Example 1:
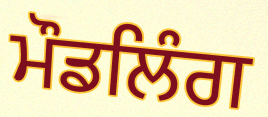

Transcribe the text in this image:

ਮੌਡਲਿੰਗ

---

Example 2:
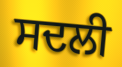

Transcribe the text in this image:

ਸਦਲੀ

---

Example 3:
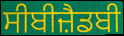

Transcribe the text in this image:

ਸੀਬੀਜ਼ੈਡਬੀ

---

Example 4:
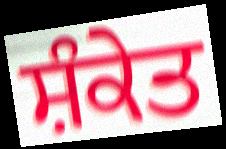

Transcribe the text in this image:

ਸ਼ੰਕੇਤ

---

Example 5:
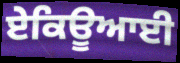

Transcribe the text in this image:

ਏਕਿਊਆਈ